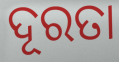
ଦୂରତା